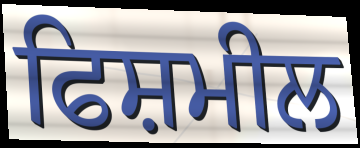
ਫਿਸ਼ਮੀਲ